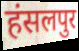
हंसलपुर